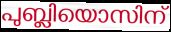
പുബ്ലിയൊസിന്